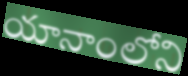
యానాంలోని